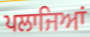
ਪਲਾਜਿਆਂ